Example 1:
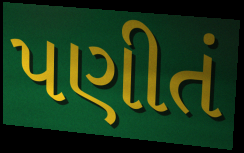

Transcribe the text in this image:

પણીતં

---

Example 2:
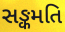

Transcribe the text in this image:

સઙ્કમતિ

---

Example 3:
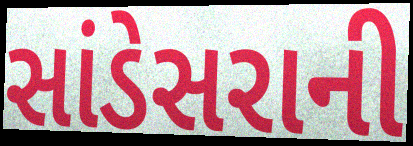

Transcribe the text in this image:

સાંડેસરાની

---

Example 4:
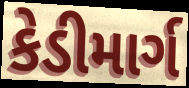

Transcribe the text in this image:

કેડીમાર્ગ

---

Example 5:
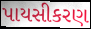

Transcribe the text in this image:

પાયસીકરણ